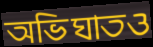
অভিঘাতও